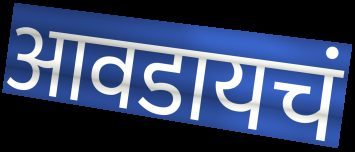
आवडायचं